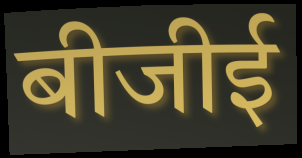
बीजीई